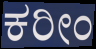
ಕರೀಂ